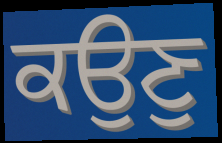
ਕਉਣੁ